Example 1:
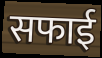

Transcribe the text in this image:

सफाई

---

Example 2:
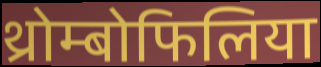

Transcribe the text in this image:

थ्रोम्बोफिलिया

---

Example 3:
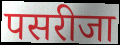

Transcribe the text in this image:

पसरीजा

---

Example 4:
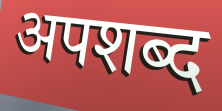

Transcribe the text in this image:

अपशब्द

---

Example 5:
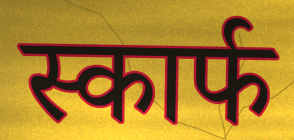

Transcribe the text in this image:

स्कार्फ